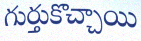
గుర్తుకొచ్చాయి